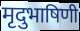
मृदुभाषिणी